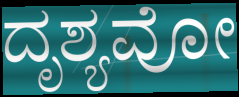
ದೃಶ್ಯವೋ